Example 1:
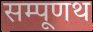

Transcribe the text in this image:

सम्पूणथ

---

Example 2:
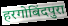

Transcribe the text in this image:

हरगोबिंदपुरा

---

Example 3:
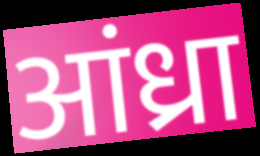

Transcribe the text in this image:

आंध्रा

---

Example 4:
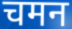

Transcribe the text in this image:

चमन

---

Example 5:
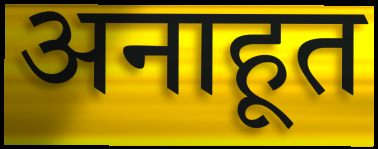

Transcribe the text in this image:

अनाहूत